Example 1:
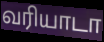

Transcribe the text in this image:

வரியாடா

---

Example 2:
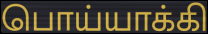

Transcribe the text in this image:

பொய்யாக்கி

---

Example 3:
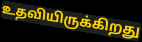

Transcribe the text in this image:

உதவியிருக்கிறது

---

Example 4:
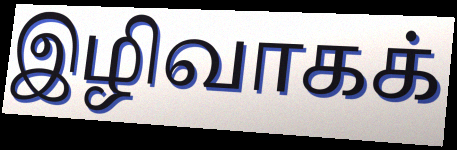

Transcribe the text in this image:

இழிவாகக்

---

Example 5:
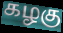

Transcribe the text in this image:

கழகு